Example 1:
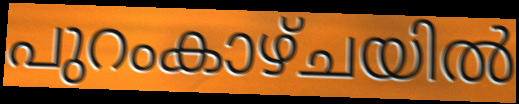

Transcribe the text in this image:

പുറംകാഴ്ചയിൽ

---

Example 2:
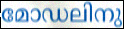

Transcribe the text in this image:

മോഡലിനു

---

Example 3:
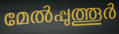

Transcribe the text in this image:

മേൽപ്പുത്തൂർ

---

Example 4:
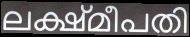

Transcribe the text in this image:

ലക്ഷ്മീപതി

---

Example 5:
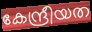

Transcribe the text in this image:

കേന്ദ്രീയത